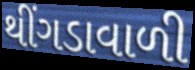
થીંગડાવાળી